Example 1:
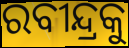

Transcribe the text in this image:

ରବୀନ୍ଦ୍ରକୁ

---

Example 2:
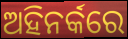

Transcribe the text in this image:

ଅହିନର୍କରେ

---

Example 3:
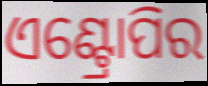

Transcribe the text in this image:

ଏଣ୍ଟ୍ରୋପିର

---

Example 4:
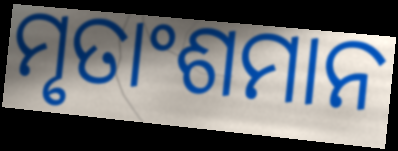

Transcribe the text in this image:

ମୃତାଂଶମାନ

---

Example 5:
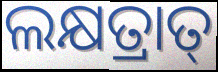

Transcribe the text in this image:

ଲକ୍ଷତ୍ରାତ୍